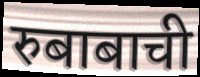
रुबाबाची